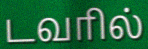
டவரில்